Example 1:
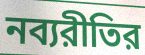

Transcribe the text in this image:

নব্যরীতির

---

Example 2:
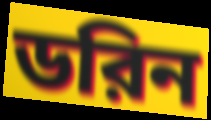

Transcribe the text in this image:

ডরিন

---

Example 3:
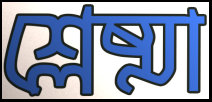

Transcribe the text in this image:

শ্লেষ্মা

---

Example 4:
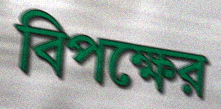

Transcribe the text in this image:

বিপক্ষের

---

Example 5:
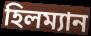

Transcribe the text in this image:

হিলম্যান